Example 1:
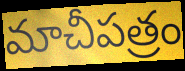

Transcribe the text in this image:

మాచీపత్రం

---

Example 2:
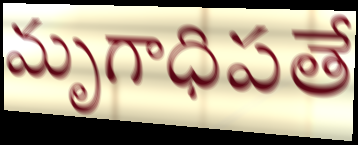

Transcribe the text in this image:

మృగాధిపతే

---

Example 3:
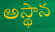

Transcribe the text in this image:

అస్థాన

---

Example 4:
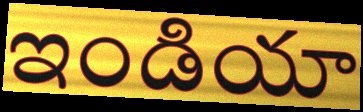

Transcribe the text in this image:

ఇండియా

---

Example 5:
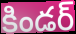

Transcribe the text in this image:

కిండర్